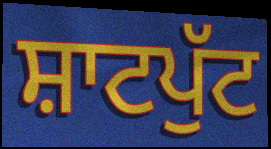
ਸ਼ਾਟਪੁੱਟ